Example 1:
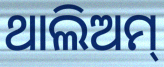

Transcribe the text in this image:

ଥାଲିଅମ୍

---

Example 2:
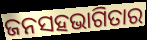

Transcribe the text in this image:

ଜନସହଭାଗିତାର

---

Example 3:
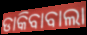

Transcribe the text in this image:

ଡାକିବାବାଲା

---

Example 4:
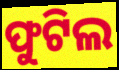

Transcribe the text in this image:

ଫୁଟିଲ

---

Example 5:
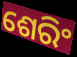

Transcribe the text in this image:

ଶେରିଂ